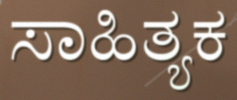
ಸಾಹಿತ್ಯಕ